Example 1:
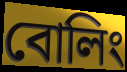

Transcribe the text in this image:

বোলিং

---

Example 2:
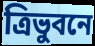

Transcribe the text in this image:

ত্রিভুবনে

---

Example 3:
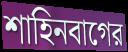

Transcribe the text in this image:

শাহিনবাগের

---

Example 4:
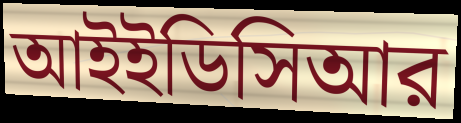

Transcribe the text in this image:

আইইডিসিআর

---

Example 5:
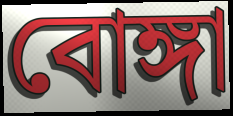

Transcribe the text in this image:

বোঙ্গা